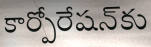
కార్పోరేషన్‌కు